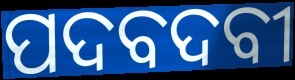
ପଦବଦବୀ